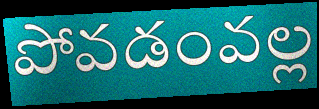
పోవడంవల్ల